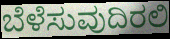
ಬೆಳೆಸುವುದಿರಲಿ